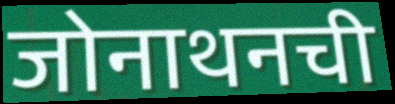
जोनाथनची